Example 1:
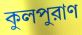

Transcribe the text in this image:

কুলপুরাণ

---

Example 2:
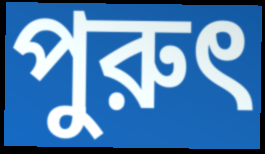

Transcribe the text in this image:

পুরুৎ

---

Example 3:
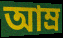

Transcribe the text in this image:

আম্র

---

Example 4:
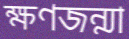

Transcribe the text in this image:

ক্ষণজন্মা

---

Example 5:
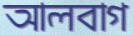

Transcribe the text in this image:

আলবাগ